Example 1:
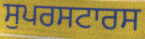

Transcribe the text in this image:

ਸੁਪਰਸਟਾਰਸ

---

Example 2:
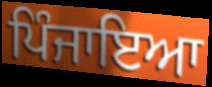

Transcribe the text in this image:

ਪਿੰਜਾਇਆ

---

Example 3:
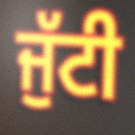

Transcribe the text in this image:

ਜੁੱਟੀ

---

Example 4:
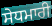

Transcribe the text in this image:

ਸੇਧਮਾਰੀ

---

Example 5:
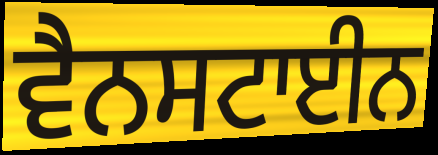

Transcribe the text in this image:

ਵੈਨਸਟਾਈਨ